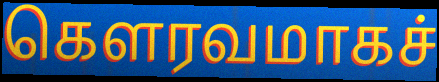
கௌரவமாகச்